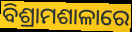
ବିଶ୍ରାମଶାଳାରେ